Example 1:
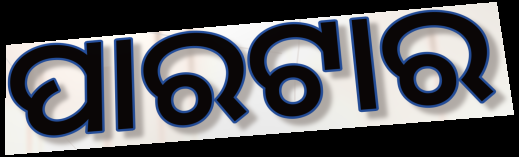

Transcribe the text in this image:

ପାରଟାର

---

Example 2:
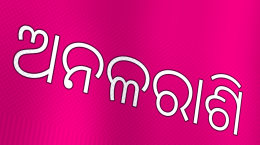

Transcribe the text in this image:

ଅନଳରାଶି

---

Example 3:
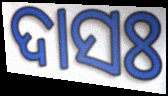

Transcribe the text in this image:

ଦାସଃ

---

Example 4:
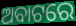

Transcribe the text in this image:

ଅବାଟରେ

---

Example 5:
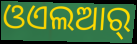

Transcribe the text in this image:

ଓଏଲଆର୍